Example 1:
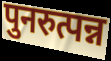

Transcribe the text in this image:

पुनरुत्पन्न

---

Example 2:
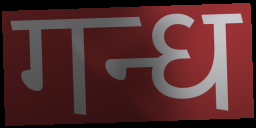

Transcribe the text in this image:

गन्‍ध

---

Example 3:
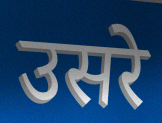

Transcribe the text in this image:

उसरे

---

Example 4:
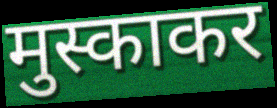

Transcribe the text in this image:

मुस्काकर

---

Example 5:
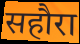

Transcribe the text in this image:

सहौरा